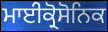
ਮਾਈਕ੍ਰੋਸੋਨਿਕ